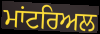
ਮਾਂਟਰਿਅਲ